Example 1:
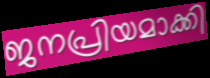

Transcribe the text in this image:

ജനപ്രിയമാക്കി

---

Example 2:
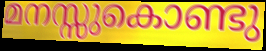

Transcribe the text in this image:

മനസ്സുകൊണ്ടു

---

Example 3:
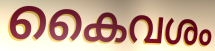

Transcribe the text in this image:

കൈവശം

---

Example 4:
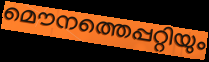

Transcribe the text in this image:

മൌനത്തെപ്പറ്റിയും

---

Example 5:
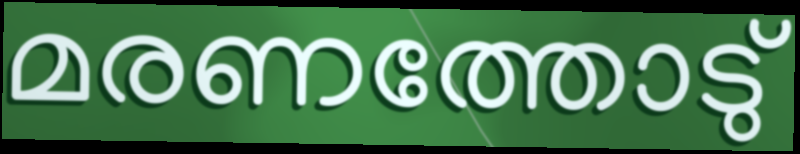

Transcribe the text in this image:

മരണത്തോടു്